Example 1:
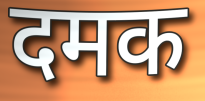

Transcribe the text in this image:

दमक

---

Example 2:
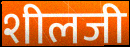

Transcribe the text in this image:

शीलजी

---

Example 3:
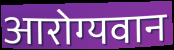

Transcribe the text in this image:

आरोग्यवान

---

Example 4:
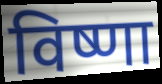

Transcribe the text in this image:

विष्णा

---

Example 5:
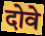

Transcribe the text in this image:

दोवे